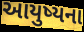
આયુષ્યના